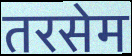
तरसेम